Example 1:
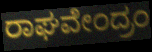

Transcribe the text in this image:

ರಾಘವೇಂದ್ರಂ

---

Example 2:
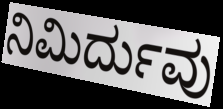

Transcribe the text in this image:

ನಿಮಿರ್ದುವು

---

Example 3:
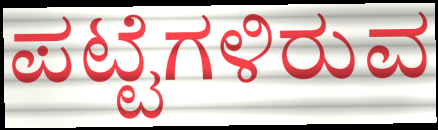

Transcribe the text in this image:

ಪಟ್ಟೆಗಳಿರುವ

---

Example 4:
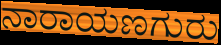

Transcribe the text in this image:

ನಾರಾಯಣಗುರು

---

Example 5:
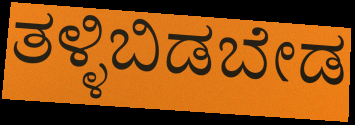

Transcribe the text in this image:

ತಳ್ಳಿಬಿಡಬೇಡ